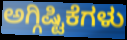
ಅಗ್ಗಿಷ್ಟಿಕೆಗಳು